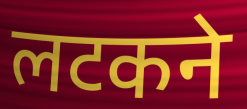
लटकने